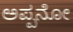
ಅಪ್ಪನೋ